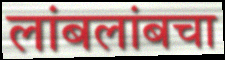
लांबलांबचा